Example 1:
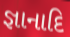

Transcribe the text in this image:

જ્ઞાનાદિ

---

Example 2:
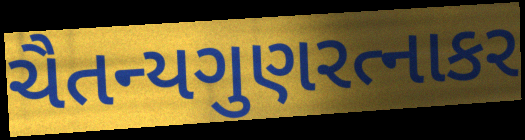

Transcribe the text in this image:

ચૈતન્યગુણરત્નાકર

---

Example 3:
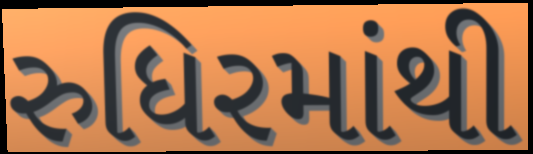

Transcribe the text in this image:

રુધિરમાંથી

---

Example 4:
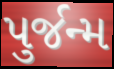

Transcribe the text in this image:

પુર્જન્મ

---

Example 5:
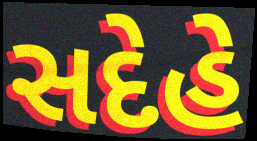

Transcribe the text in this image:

સદેહે